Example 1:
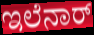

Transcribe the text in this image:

ಇಲೆನಾರ್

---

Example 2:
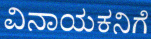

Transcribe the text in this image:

ವಿನಾಯಕನಿಗೆ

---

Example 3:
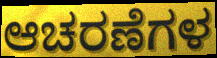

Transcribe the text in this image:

ಆಚರಣೆಗಳ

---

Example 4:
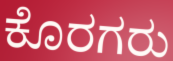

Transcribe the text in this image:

ಕೊರಗರು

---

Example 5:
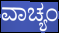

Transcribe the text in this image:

ವಾಚ್ಯಂ